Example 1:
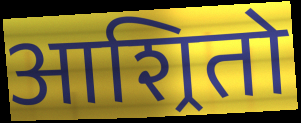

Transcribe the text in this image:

आश्रितो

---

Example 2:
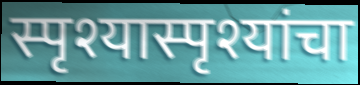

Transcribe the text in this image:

स्पृश्यास्पृश्यांचा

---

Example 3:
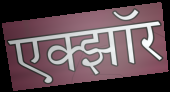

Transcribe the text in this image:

एक्झॉर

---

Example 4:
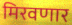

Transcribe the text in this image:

मिरवणार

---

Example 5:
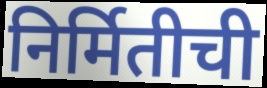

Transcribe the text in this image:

निर्मितीची